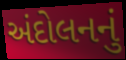
અંદોલનનું